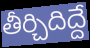
తీర్చిదిద్దే